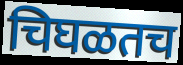
चिघळतच